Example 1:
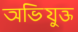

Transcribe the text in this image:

অভিযুক্ত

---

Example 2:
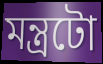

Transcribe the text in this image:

মন্ত্ৰটো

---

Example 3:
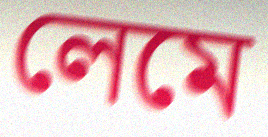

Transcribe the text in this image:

লেমে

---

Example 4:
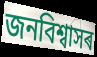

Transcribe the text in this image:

জনবিশ্বাসৰ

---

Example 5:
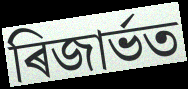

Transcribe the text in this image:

ৰিজাৰ্ভত